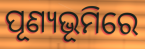
ପୂଣ୍ୟଭୂମିରେ